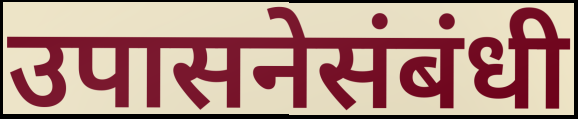
उपासनेसंबंधी